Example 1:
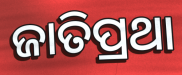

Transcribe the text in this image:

ଜାତିପ୍ରଥା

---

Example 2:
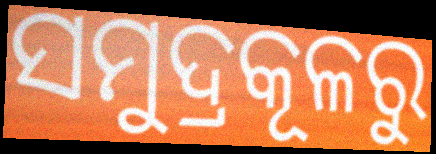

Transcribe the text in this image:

ସମୁଦ୍ରକୂଳରୁ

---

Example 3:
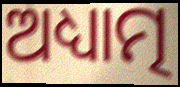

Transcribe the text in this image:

ଅଧ୍ୟାତ୍ମ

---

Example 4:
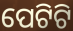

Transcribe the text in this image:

ପେଟିଟି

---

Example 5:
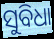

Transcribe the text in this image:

ସୁବିଧା